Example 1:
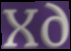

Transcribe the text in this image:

Xd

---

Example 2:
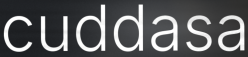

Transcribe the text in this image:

cuddasa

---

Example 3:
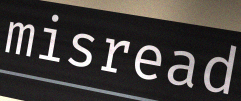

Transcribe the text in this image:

misread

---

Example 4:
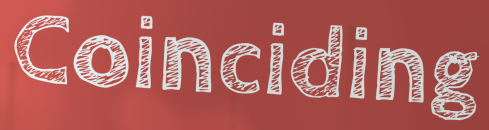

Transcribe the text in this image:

Coinciding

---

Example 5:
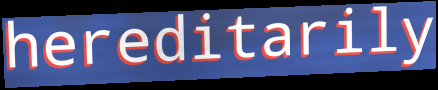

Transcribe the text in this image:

hereditarily